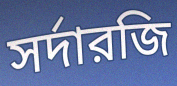
সর্দারজি